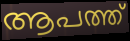
ആപത്ത്